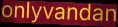
onlyvandan